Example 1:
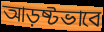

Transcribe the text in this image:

আড়ষ্টভাবে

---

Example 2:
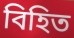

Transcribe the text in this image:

বিহিত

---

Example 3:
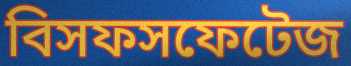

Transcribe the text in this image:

বিসফসফেটেজ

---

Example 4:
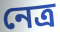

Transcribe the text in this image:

নেত্র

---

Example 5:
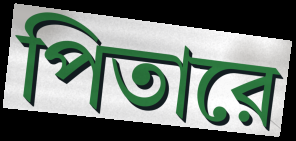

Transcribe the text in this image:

পিতারে